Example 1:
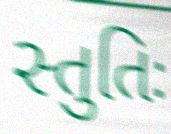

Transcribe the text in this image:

સ્તુતિઃ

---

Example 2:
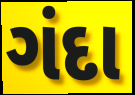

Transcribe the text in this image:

ગંદા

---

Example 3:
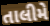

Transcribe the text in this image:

તાલીમે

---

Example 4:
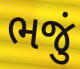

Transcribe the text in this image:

ભજું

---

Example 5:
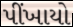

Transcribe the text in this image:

પીંખાયો